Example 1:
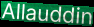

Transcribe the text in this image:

Allauddin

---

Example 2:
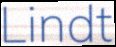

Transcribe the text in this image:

Lindt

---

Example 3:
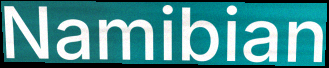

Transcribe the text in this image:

Namibian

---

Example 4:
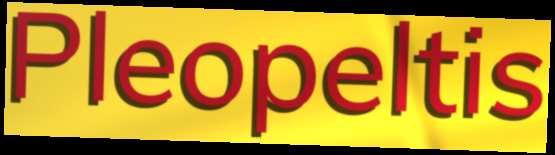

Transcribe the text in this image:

Pleopeltis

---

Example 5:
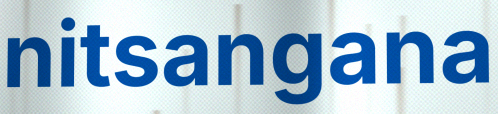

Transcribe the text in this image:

nitsangana